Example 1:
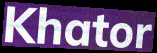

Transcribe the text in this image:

Khator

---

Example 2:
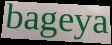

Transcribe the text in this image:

bageya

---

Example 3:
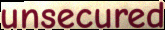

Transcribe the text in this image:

unsecured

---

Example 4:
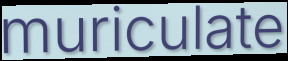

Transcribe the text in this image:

muriculate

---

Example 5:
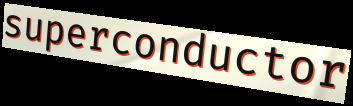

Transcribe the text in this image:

superconductor